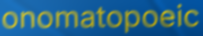
onomatopoeic